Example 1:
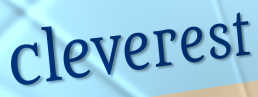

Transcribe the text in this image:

cleverest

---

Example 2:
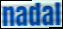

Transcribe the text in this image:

nadal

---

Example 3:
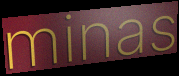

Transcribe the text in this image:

minas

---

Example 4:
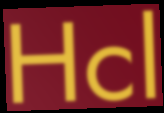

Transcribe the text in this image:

Hcl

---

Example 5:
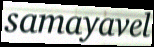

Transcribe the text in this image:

samayavel